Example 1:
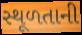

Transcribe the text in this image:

સ્થૂળતાની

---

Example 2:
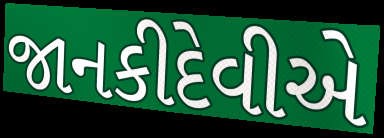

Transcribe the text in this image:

જાનકીદેવીએ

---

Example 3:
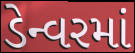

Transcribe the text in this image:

ડેન્વરમાં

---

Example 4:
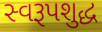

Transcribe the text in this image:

સ્વરૂપશુદ્ધ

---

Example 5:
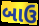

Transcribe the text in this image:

બાઉ